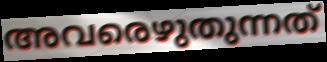
അവരെഴുതുന്നത്